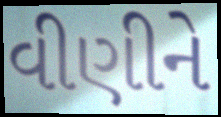
વીણીને